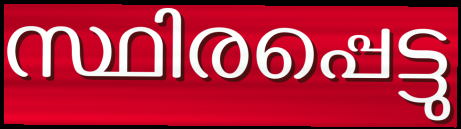
സ്ഥിരപ്പെട്ടു